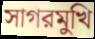
সাগরমুখি